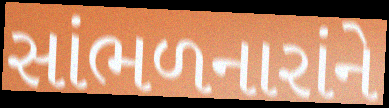
સાંભળનારાંને